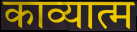
काव्यात्म